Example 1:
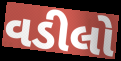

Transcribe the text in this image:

વડીલો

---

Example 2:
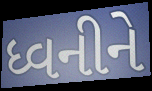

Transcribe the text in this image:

ધ્વનીને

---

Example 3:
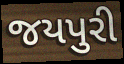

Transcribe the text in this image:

જયપુરી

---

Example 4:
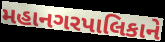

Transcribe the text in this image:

મહાનગરપાલિકાને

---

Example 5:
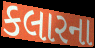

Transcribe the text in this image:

કલારના